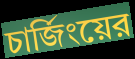
চার্জিংয়ের